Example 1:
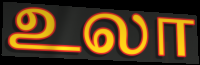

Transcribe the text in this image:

உலா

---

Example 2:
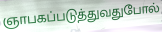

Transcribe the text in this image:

ஞாபகப்படுத்துவதுபோல்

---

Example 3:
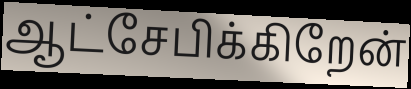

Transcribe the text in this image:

ஆட்சேபிக்கிறேன்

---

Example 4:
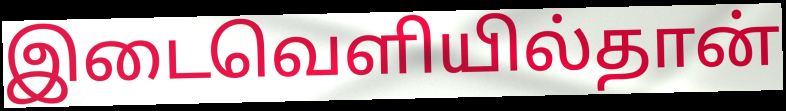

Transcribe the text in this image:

இடைவெளியில்தான்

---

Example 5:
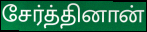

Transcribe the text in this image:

சேர்த்தினான்